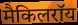
मैकिलरॉय